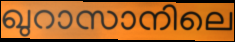
ഖുറാസാനിലെ